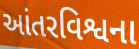
આંતરવિશ્વના